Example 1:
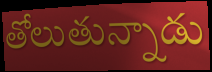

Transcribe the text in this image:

తోలుతున్నాడు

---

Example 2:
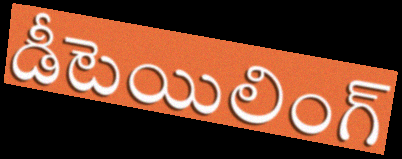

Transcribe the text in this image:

డీటెయిలింగ్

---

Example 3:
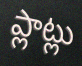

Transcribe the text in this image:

ప్లాట్లు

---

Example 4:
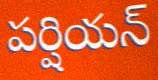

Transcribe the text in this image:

పర్షియన్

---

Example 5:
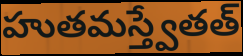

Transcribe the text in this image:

హుతమస్త్వేతత్